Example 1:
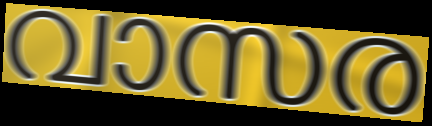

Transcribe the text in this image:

വാസര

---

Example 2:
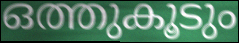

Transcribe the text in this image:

ഒത്തുകൂടും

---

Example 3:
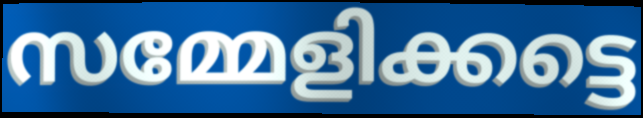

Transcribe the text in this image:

സമ്മേളിക്കട്ടെ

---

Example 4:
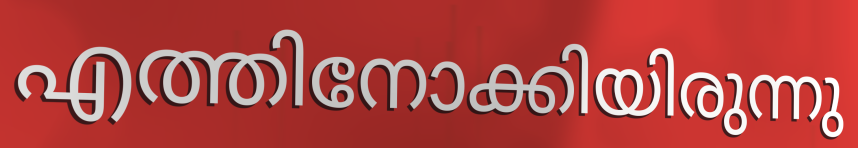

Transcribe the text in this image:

എത്തിനോക്കിയിരുന്നു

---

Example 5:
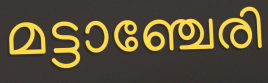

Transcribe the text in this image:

മട്ടാഞ്ചേരി